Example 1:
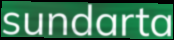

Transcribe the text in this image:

sundarta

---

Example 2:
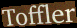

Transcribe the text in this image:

Toffler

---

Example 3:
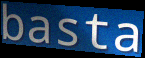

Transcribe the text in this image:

basta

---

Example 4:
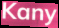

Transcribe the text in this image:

Kany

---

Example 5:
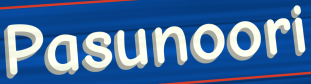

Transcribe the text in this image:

Pasunoori